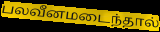
பலவீனமடைந்தால்